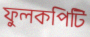
ফুলকপিটি